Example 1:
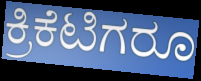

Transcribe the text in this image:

ಕ್ರಿಕೆಟಿಗರೂ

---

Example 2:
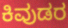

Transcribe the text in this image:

ಕಿವುಡರ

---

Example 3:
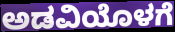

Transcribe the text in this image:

ಅಡವಿಯೊಳಗೆ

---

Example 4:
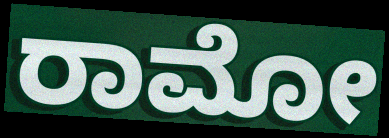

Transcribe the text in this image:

ರಾಮೋ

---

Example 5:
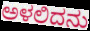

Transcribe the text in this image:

ಅಳಲಿದನು